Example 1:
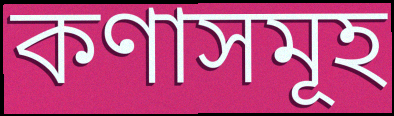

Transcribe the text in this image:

কণাসমূহ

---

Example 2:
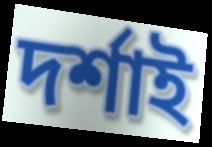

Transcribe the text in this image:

দৰ্শাই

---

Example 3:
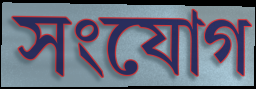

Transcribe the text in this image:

সংযোগ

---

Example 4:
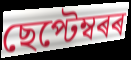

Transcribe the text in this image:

ছেপ্টেম্বৰৰ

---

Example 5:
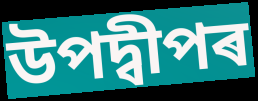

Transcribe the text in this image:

উপদ্বীপৰ